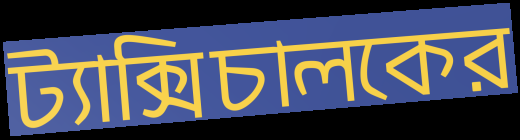
ট্যাক্সিচালকের